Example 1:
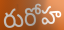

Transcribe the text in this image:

రురోహ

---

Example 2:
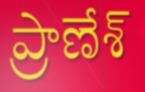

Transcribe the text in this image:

ప్రాణేశ్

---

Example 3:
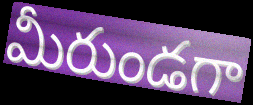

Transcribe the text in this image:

మీరుండగా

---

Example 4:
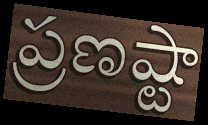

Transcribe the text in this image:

ప్రణష్టా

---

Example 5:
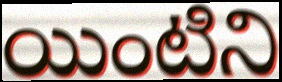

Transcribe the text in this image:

యింటిని